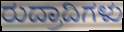
ರುದ್ರಾದಿಗಳು